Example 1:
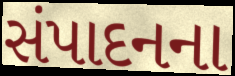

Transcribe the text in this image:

સંપાદનના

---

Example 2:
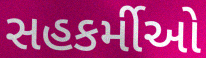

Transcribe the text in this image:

સહકર્મીઓ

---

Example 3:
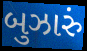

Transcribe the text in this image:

બુઝારું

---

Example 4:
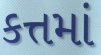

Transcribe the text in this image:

કત્તમાં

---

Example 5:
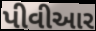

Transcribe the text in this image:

પીવીઆર